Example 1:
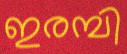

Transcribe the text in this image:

ഇരമ്പി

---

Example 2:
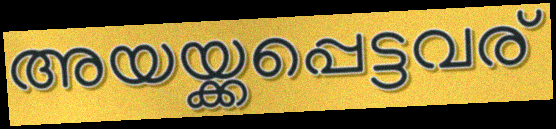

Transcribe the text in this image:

അയയ്ക്കപ്പെട്ടവര്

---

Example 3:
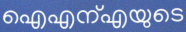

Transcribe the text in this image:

ഐഎന്എയുടെ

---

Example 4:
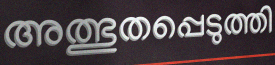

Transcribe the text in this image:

അത്ഭുതപ്പെടുത്തി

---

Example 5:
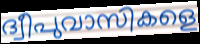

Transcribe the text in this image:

ദ്വീപുവാസികളെ